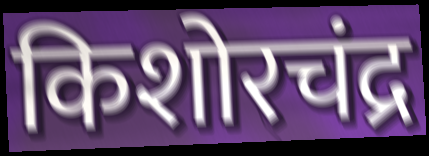
किशोरचंद्र